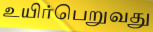
உயிர்பெறுவது